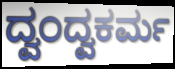
ದ್ವಂದ್ವಕರ್ಮ